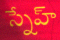
స్నేహ్